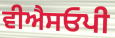
ਵੀਐਸਓਪੀ